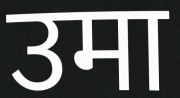
उमा